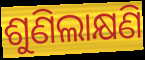
ଶୁଣିଲାକ୍ଷଣି